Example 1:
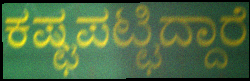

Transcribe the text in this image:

ಕಷ್ಟಪಟ್ಟಿದ್ದಾರೆ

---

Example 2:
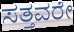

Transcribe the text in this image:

ಸತ್ತವರೇ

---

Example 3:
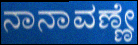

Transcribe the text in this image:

ನಾನಾವಣ್ಣೇ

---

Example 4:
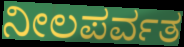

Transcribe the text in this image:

ನೀಲಪರ್ವತ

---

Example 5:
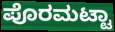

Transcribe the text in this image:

ಪೊರಮಟ್ಟಾ